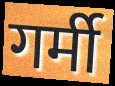
गर्मी